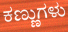
ಕಣ್ಣುಗಳು